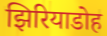
झिरियाडोह